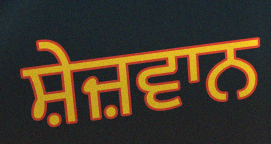
ਸ਼ੇਜ਼ਵਾਨ